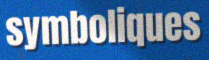
symboliques